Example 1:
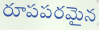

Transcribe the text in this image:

రూపపరమైన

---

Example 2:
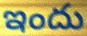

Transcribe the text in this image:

ఇందు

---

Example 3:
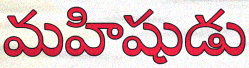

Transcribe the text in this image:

మహిషుడు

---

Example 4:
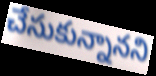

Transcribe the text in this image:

చేసుకున్నానని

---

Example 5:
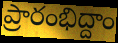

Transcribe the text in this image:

ప్రారంభిద్దాం